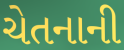
ચેતનાની